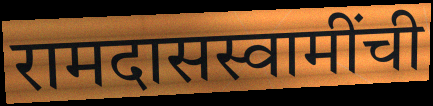
रामदासस्वामींची